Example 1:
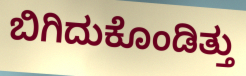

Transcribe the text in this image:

ಬಿಗಿದುಕೊಂಡಿತ್ತು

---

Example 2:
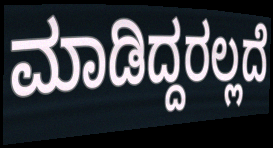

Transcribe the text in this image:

ಮಾಡಿದ್ದರಲ್ಲದೆ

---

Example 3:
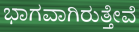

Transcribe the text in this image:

ಭಾಗವಾಗಿರುತ್ತೇವೆ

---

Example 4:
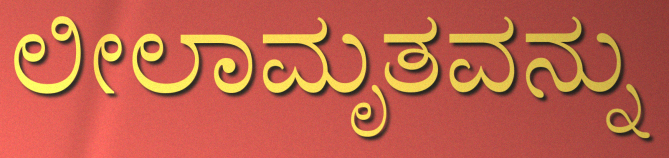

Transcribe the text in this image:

ಲೀಲಾಮೃತವನ್ನು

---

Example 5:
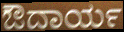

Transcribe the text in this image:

ಔದಾರ್ಯ